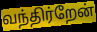
வந்திர்றேன்